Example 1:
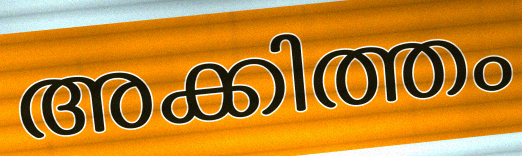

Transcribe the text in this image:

അക്കിത്തം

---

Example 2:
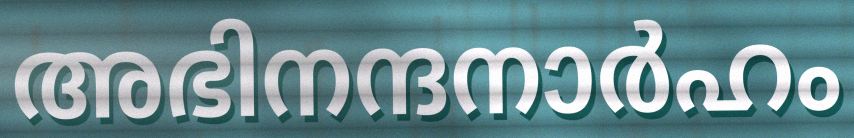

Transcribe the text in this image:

അഭിനന്ദനാർഹം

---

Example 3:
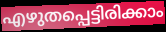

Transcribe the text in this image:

എഴുതപ്പെട്ടിരിക്കാം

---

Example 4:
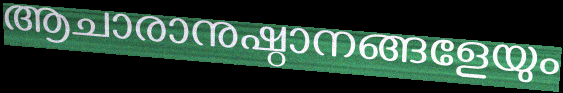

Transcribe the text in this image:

ആചാരാനുഷ്ഠാനങ്ങളേയും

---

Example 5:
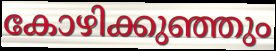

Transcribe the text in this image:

കോഴിക്കുഞ്ഞും